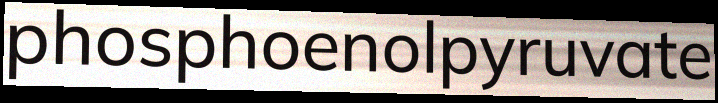
phosphoenolpyruvate